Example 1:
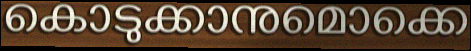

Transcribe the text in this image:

കൊടുക്കാനുമൊക്കെ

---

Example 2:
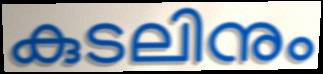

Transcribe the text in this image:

കുടലിനും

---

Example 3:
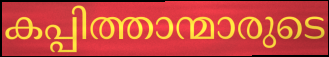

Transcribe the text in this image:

കപ്പിത്താന്മാരുടെ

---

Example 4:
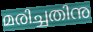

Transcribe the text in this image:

മരിച്ചതിനു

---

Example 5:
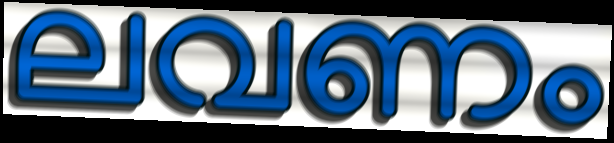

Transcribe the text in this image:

ലവണം